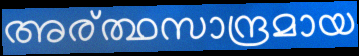
അര്ത്ഥസാന്ദ്രമായ